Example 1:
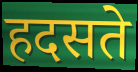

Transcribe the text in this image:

हदसते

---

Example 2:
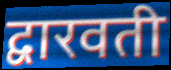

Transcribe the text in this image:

द्वारवती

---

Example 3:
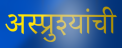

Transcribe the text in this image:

अस्प्रुश्यांची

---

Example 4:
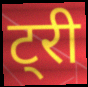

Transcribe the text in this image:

ट्री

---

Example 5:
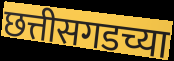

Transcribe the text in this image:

छत्तीसगडच्या